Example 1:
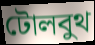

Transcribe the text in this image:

টোলবুথ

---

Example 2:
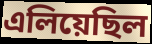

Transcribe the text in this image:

এলিয়েছিল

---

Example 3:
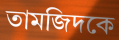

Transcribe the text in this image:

তামজিদকে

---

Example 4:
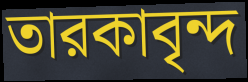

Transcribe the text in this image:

তারকাবৃন্দ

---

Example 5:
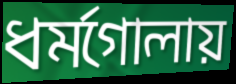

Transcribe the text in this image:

ধর্মগোলায়